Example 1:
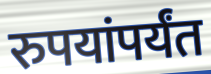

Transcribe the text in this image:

रुपयांपर्यंत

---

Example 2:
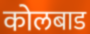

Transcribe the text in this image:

कोलबाड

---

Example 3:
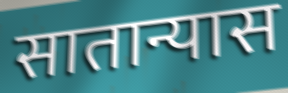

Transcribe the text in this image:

सातान्यास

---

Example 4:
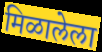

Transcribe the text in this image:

मिळालेला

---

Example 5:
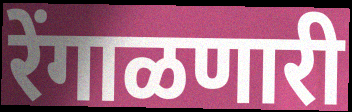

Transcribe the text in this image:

रेंगाळणारी